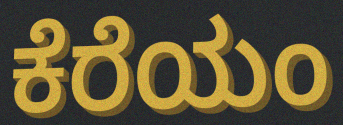
ಕೆರೆಯಂ